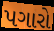
પગારો